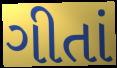
ગીતાં